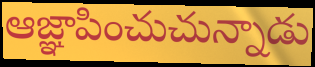
ఆజ్ఞాపించుచున్నాడు